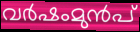
വർഷംമുൻപ്